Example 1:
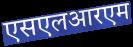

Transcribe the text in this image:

एसएलआरएम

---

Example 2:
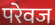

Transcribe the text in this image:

परेवज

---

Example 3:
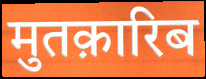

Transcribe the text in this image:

मुतक़ारिब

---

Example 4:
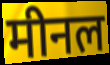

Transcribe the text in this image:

मीनल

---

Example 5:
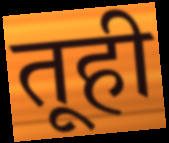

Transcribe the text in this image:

तूही